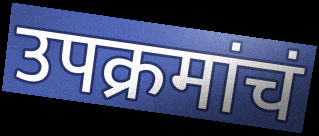
उपक्रमांचं